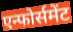
एन्फोर्समेंट